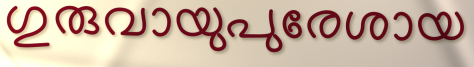
ഗുരുവായുപുരേശായ